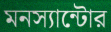
মনস্যান্টোর